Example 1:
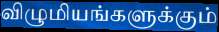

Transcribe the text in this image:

விழுமியங்களுக்கும்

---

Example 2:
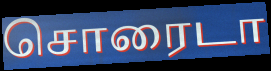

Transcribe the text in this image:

சொரைடா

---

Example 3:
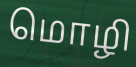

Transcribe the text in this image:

மொழி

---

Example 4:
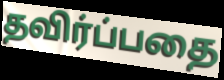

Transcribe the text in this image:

தவிர்ப்பதை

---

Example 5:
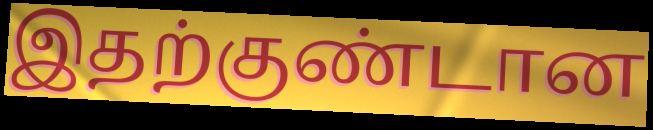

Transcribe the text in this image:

இதற்குண்டான